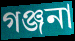
গঞ্জনা